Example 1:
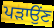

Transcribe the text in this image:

ਪੜਾਉਂਣ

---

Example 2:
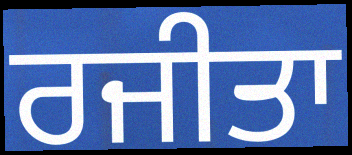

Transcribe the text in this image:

ਰਜੀਤਾ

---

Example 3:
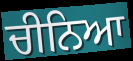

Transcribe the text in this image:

ਚੀਨਿਆ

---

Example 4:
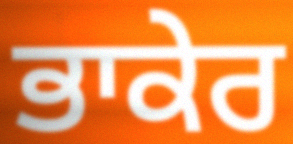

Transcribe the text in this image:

ਭਾਕੇਰ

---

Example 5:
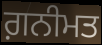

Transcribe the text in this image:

ਗ਼ਨੀਮਤ